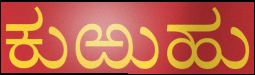
ಕುಱುಹು